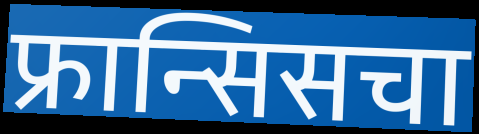
फ्रान्सिसचा